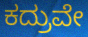
ಕದ್ರುವೇ